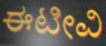
ಈಟೀವಿ